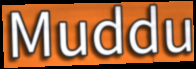
Muddu